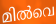
മിൽവെ